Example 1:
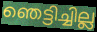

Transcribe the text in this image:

ഞെട്ടിച്ചില്ല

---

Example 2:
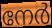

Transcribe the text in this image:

നേർ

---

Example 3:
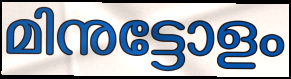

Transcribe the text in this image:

മിനുട്ടോളം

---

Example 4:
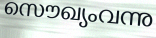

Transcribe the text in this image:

സൌഖ്യംവന്നു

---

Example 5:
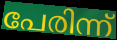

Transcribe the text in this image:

പേരിന്ന്